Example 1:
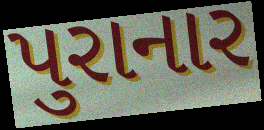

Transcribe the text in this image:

પુરાનાર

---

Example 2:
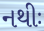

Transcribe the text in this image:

નથીઃ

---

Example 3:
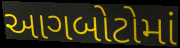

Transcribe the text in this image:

આગબોટોમાં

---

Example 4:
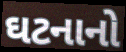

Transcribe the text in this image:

ઘટનાનો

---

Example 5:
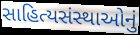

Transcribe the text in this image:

સાહિત્યસંસ્થાઓનું